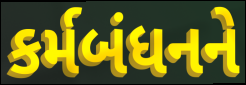
કર્મબંધનને